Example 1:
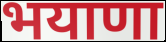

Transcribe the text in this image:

भयाणा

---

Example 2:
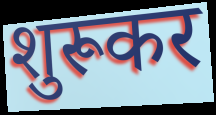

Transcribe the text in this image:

शुरूकर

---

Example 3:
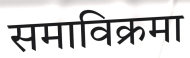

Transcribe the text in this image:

समाविक्रमा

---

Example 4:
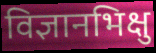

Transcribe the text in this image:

विज्ञानभिक्षु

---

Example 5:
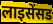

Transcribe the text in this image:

लाइसेंसड